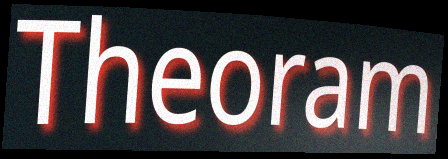
Theoram